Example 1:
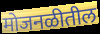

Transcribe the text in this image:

मोजनळीतील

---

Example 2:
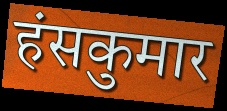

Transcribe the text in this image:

हंसकुमार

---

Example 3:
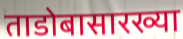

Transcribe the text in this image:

ताडोबासारख्या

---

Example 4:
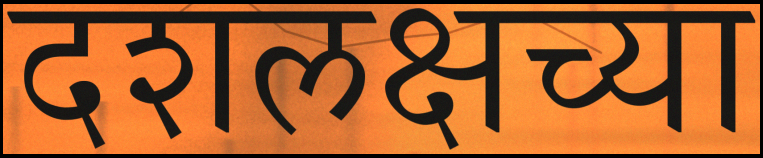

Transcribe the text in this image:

दशलक्षच्या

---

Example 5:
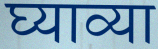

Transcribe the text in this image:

घ्याव्या